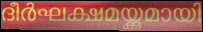
ദീർഘക്ഷമയ്ക്കുമായി